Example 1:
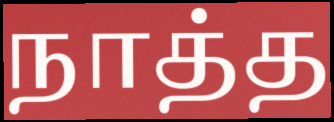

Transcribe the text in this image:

நாத்த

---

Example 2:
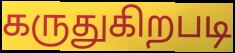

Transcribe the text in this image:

கருதுகிறபடி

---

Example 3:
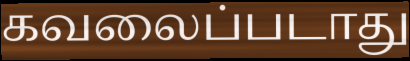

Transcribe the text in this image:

கவலைப்படாது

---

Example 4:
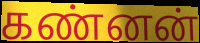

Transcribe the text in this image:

கண்னன்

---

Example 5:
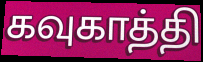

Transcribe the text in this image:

கவுகாத்தி